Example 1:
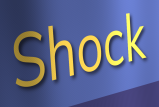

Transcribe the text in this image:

Shock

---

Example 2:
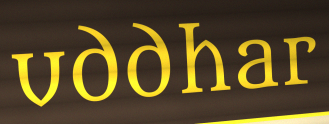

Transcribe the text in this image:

uddhar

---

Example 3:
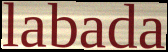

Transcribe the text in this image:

labada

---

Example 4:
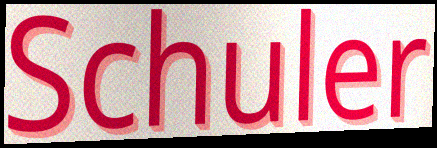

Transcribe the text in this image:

Schuler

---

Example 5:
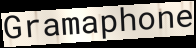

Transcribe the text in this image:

Gramaphone